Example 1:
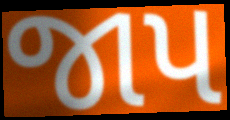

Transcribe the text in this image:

જાપ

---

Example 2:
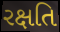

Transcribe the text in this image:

રક્ષતિ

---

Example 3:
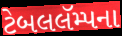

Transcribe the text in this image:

ટેબલલૅમ્પના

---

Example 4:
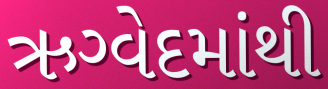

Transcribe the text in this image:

ઋગ્વેદમાંથી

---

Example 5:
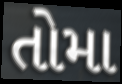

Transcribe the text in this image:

તોમા